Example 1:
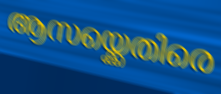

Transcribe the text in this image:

ആസയ്ക്കെതിരെ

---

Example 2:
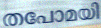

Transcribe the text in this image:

തപോമയി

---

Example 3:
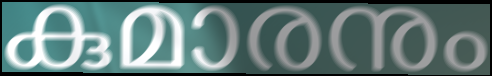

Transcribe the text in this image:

കുമാരനും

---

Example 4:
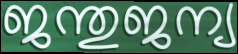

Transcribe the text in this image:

ജന്തുജന്യ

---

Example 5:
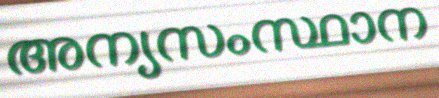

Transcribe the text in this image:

അന്യസംസ്ഥാന